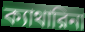
ক্যাথারিনা